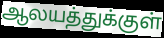
ஆலயத்துக்குள்